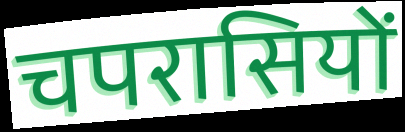
चपरासियों